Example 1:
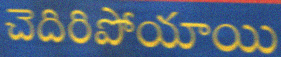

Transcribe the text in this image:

చెదిరిపోయాయి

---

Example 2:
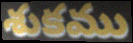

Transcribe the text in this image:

శుకము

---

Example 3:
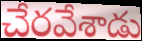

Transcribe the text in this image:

చేరవేశాడు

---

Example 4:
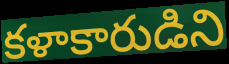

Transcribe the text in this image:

కళాకారుడిని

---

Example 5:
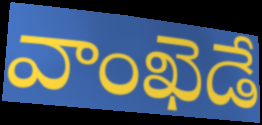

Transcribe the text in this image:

వాంఖెడే